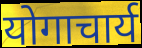
योगाचार्य